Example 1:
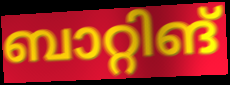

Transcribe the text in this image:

ബാറ്റിങ്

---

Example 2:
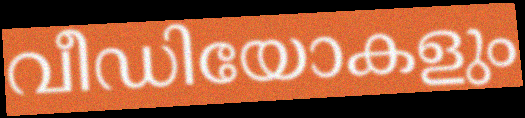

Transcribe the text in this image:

വീഡിയോകളും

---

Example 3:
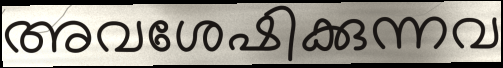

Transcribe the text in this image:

അവശേഷിക്കുന്നവ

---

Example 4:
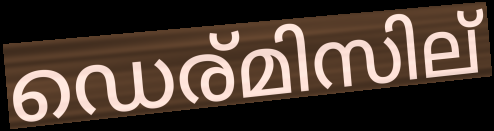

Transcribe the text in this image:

ഡെര്മിസില്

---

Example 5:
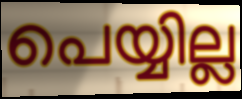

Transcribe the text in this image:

പെയ്യില്ല